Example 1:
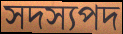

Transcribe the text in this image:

সদস্যপদ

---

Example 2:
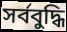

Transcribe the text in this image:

সৰ্ববুদ্ধি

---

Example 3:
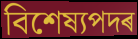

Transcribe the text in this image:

বিশেষ্যপদৰ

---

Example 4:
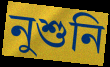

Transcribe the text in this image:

নুশুনি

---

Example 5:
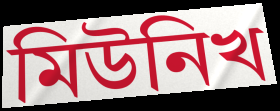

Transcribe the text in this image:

মিউনিখ